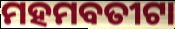
ମହମବତୀଟା